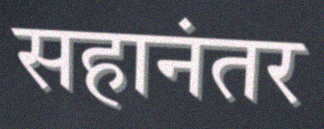
सहानंतर